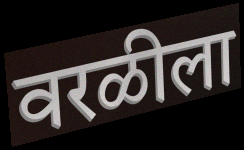
वरळीला